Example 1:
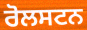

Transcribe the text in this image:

ਰੋਲਸਟਨ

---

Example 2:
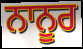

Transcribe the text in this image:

ਨਾਨੂਰ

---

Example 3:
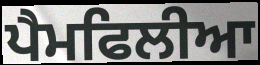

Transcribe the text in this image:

ਪੈਮਫਿਲੀਆ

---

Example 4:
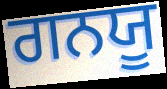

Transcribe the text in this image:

ਗਨਯੂ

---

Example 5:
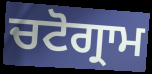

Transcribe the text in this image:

ਚਟੋਗ੍ਰਾਮ